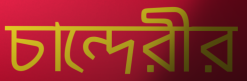
চান্দেরীর